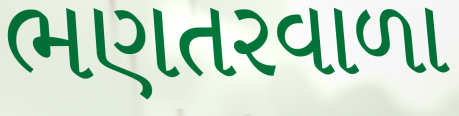
ભણતરવાળા